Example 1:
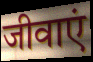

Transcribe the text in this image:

जीवाएं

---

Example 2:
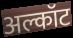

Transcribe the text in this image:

अल्कॉट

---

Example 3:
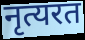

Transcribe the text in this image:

नृत्यरत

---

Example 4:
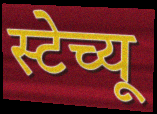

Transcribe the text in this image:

स्टेच्यू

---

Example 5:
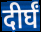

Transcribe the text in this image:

दीर्घं